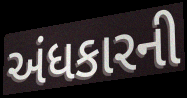
અંધકારની